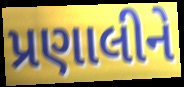
પ્રણાલીને